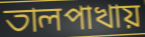
তালপাখায়